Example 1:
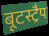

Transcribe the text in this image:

बूटस्ट्रैप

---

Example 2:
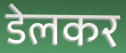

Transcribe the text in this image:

डेलकर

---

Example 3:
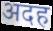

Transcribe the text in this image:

अदह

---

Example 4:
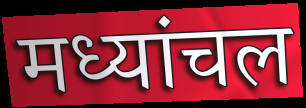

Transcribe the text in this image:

मध्यांचल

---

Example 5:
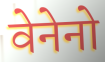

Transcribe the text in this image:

वेनेनो